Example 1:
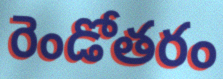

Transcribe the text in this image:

రెండోతరం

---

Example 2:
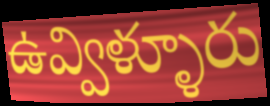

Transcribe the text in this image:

ఉవ్విళ్ళూరు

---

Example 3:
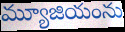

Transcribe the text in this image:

మ్యూజియంను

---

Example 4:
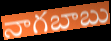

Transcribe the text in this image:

నాగబాబు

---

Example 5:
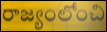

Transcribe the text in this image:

రాజ్యంలోంచి